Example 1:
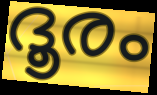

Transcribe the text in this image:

ദൂരം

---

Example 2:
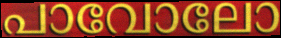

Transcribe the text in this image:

പാവോലോ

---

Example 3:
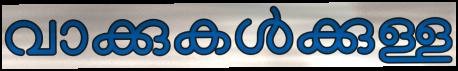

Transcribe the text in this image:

വാക്കുകൾക്കുള്ള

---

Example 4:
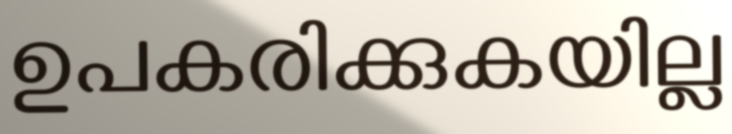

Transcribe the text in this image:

ഉപകരിക്കുകയില്ല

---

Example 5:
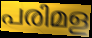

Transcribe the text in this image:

പരിമള